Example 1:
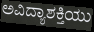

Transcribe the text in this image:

ಅವಿದ್ಯಾಶಕ್ತಿಯು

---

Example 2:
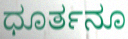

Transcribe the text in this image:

ಧೂರ್ತನೂ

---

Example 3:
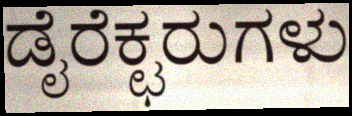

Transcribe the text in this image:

ಡೈರೆಕ್ಟರುಗಳು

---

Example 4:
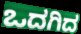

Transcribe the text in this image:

ಒದಗಿದ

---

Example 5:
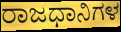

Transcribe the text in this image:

ರಾಜಧಾನಿಗಳ